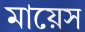
মায়েস